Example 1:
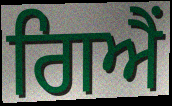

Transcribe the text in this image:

ਗਿਐਂ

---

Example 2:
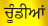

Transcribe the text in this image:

ਚੂੰਡੀਆਂ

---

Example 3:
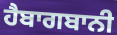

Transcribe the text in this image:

ਹੈਬਾਗਬਾਨੀ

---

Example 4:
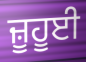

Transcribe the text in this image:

ਜ਼ੂਹੂਈ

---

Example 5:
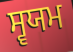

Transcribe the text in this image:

ਸ੍ਵਯਮ